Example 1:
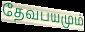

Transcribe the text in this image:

தேவபயமும்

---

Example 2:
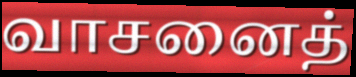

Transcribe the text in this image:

வாசனைத்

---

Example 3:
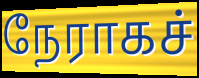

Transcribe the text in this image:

நேராகச்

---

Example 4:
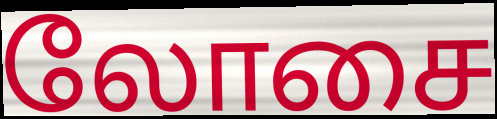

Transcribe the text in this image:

லோசை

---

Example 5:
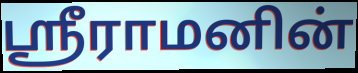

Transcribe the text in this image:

ஸ்ரீராமனின்